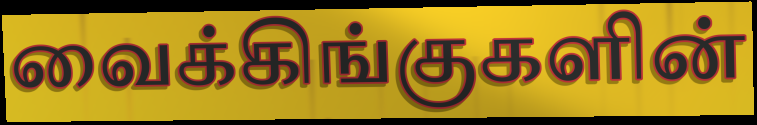
வைக்கிங்குகளின்